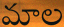
మాల